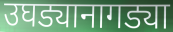
उघड्यानागड्या